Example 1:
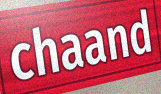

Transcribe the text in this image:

chaand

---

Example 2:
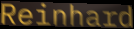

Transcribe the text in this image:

Reinhard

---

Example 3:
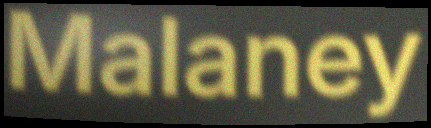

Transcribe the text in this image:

Malaney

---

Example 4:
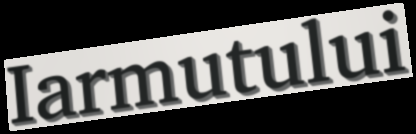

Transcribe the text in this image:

Iarmutului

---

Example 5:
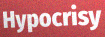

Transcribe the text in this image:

Hypocrisy